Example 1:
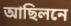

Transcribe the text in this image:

আছিলনে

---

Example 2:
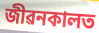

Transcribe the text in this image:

জীৱনকালত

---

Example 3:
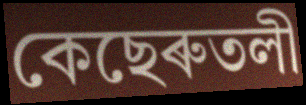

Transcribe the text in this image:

কেছেৰুতলী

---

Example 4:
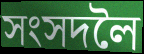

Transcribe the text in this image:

সংসদলৈ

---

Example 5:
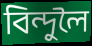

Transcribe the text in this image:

বিন্দুলৈ